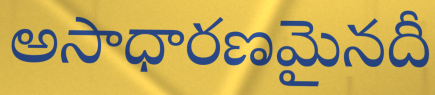
అసాధారణమైనదీ